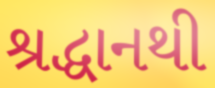
શ્રદ્ધાનથી